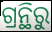
ଗ୍ରନ୍ଥିରୁ